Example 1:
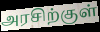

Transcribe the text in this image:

அரசிற்குள்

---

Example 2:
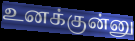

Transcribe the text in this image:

உனக்குன்னு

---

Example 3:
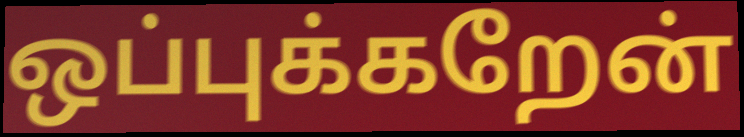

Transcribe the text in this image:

ஒப்புக்கறேன்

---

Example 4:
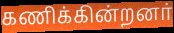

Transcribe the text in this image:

கணிக்கின்றனர்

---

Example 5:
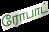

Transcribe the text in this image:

ரோபாட்